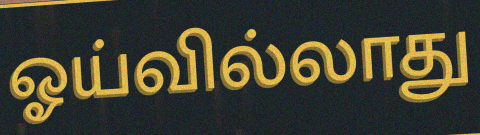
ஓய்வில்லாது